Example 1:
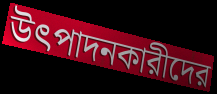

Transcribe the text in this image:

উৎপাদনকারীদের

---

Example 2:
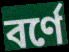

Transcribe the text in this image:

বর্ণে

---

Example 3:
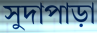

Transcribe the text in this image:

সুদাপাড়া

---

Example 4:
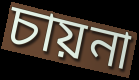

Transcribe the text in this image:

চায়না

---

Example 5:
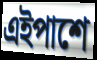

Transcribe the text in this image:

এইপাশে